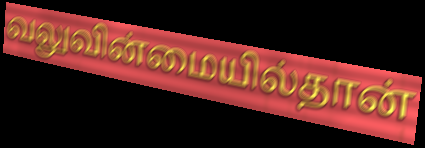
வலுவின்மையில்தான்